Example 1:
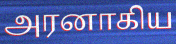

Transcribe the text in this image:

அரனாகிய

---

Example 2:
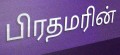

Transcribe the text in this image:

பிரதமரின்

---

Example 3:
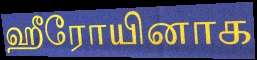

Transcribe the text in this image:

ஹீரோயினாக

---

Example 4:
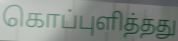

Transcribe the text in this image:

கொப்புளித்தது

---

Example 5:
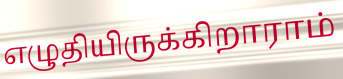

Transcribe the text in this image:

எழுதியிருக்கிறாராம்